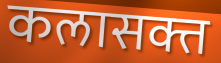
कलासक्त